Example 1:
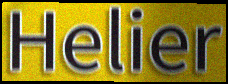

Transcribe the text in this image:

Helier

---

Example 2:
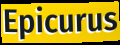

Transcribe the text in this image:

Epicurus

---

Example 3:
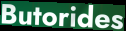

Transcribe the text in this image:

Butorides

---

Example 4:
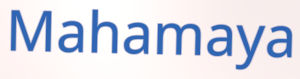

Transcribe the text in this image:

Mahamaya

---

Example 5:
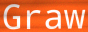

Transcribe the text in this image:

Graw